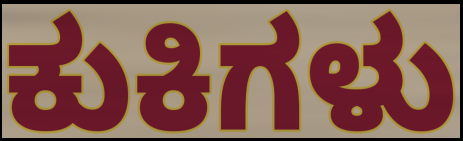
ಕುಕಿಗಳು